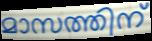
മാസത്തിന്